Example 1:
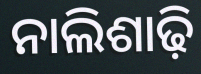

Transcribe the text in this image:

ନାଲିଶାଢ଼ି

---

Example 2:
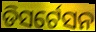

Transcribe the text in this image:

ଡିସର୍ଟେସନ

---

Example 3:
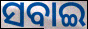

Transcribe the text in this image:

ସବାଇ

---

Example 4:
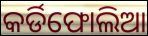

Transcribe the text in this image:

କର୍ଡିଫୋଲିଆ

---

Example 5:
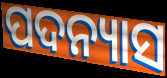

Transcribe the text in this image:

ପଦନ୍ୟାସ